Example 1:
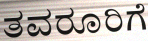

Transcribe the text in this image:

ತವರೂರಿಗೆ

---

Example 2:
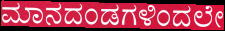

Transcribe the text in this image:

ಮಾನದಂಡಗಳಿಂದಲೇ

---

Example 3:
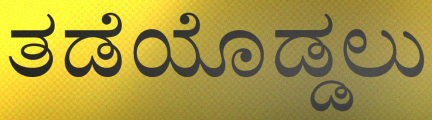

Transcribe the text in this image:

ತಡೆಯೊಡ್ಡಲು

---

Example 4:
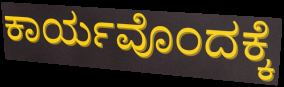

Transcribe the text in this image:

ಕಾರ್ಯವೊಂದಕ್ಕೆ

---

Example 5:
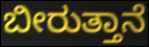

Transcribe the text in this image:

ಬೀರುತ್ತಾನೆ